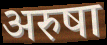
अरुषा